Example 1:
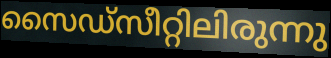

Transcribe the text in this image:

സൈഡ്സീറ്റിലിരുന്നു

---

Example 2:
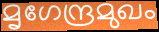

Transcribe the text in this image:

മൃഗേന്ദ്രമുഖം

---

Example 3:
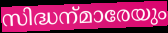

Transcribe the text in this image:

സിദ്ധന്‌മാരേയും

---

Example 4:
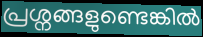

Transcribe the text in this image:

പ്രശ്നങ്ങളുണ്ടെങ്കിൽ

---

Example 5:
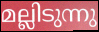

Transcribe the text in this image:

മല്ലിടുന്നു